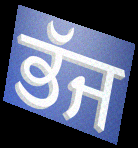
ਭੱਜ